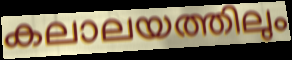
കലാലയത്തിലും